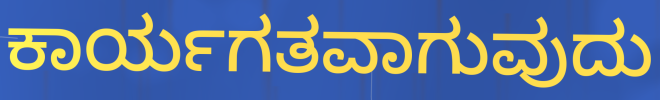
ಕಾರ್ಯಗತವಾಗುವುದು